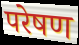
परेषण